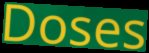
Doses